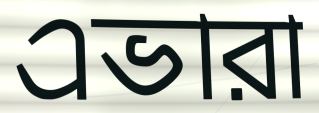
এভারা